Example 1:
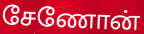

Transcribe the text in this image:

சேணோன்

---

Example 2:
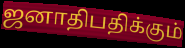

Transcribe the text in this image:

ஜனாதிபதிக்கும்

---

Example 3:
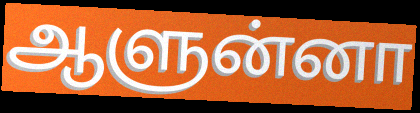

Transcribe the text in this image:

ஆளுன்னா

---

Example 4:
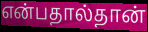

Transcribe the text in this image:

என்பதால்தான்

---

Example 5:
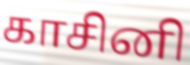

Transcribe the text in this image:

காசினி